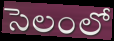
సెలంలో